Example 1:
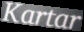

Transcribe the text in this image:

Kartar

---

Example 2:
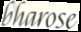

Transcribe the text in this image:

bharose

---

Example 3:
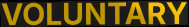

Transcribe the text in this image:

VOLUNTARY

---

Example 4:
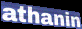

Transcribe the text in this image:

athanin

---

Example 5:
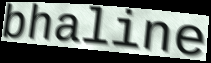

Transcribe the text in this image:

bhaline